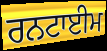
ਰਨਟਾਈਮ